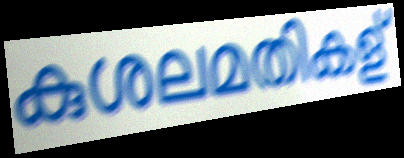
കുശലമതികള്